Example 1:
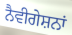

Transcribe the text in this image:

ਨੈਵੀਗੇਸ਼ਨਾਂ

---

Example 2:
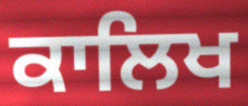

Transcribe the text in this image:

ਕਾਲਿਖ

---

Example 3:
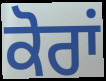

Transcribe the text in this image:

ਕੋਰਾਂ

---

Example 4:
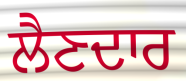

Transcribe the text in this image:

ਲੈਣਦਾਰ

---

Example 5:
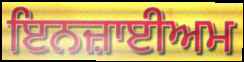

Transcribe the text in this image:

ਇਨਜ਼ਾਈਅਮ